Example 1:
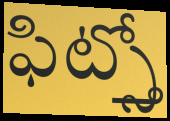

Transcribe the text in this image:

ఫిట్స్తో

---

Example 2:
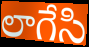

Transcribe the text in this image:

లాగేసి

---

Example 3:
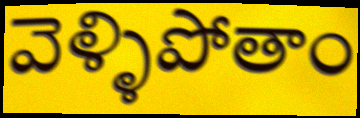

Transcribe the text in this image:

వెళ్ళిపోతాం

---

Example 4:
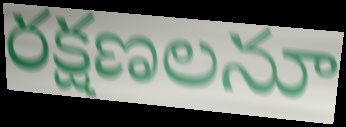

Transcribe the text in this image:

రక్షణలనూ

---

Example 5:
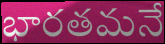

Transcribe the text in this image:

భారతమనే